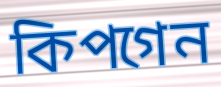
কিপগেন